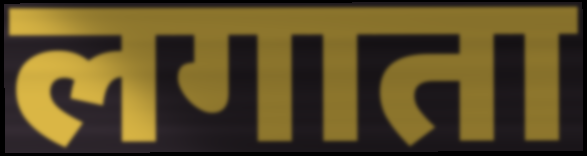
लगाता